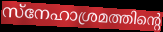
സ്നേഹാശ്രമത്തിന്റെ